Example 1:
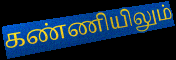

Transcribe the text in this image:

கண்ணியிலும்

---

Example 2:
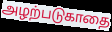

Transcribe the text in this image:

அழற்படுகாதை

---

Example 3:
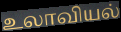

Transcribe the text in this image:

உலாவியல்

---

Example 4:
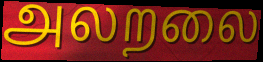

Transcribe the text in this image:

அலறலை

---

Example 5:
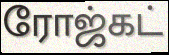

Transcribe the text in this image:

ரோஜ்கட்